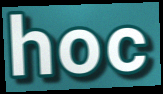
hoc